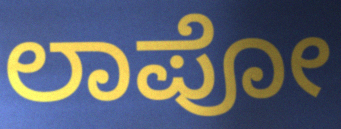
ಲಾಪೋ